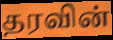
தரவின்